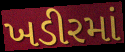
ખડીરમાં